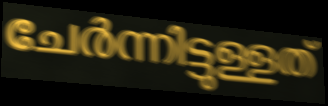
ചേർന്നിട്ടുള്ളത്